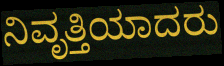
ನಿವೃತ್ತಿಯಾದರು